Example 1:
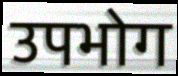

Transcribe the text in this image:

उपभोग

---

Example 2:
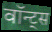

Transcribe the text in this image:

वॉन्ट्स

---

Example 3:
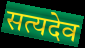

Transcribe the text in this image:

सत्‍यदेव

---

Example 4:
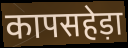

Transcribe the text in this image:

कापसहेड़ा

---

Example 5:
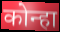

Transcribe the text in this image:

कोन्हा